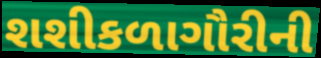
શશીકળાગૌરીની